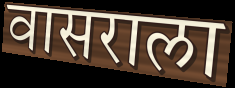
वासराला